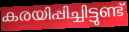
കരയിപ്പിച്ചിട്ടുണ്ട്